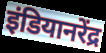
इंडियानरेंद्र